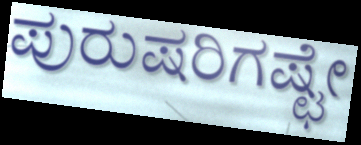
ಪುರುಷರಿಗಷ್ಟೇ